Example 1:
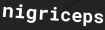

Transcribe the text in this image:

nigriceps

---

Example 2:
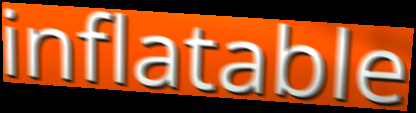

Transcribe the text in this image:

inflatable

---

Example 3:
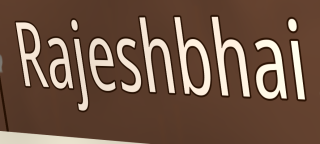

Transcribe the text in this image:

Rajeshbhai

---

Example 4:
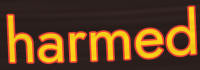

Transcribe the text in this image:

harmed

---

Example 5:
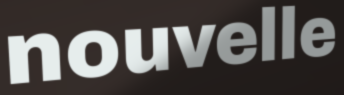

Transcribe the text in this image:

nouvelle